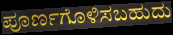
ಪೂರ್ಣಗೊಳಿಸಬಹುದು